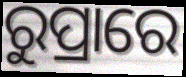
ରୁପ୍ରାରେ